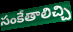
సంకేతాలిచ్చి